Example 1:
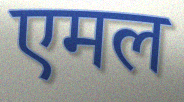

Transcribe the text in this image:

एमल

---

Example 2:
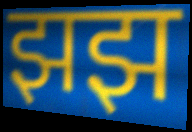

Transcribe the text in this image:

झझ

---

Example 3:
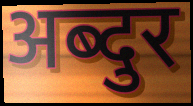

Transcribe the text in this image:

अब्दुर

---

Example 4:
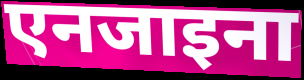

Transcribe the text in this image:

एनजाइना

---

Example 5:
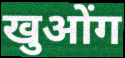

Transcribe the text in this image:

खुओंग